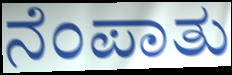
ನೆಂಪಾತು